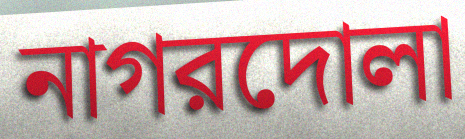
নাগরদোলা